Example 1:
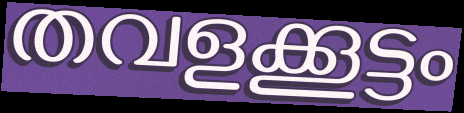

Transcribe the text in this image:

തവളക്കൂട്ടം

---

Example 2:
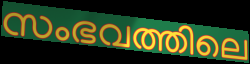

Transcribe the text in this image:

സംഭവത്തിലെ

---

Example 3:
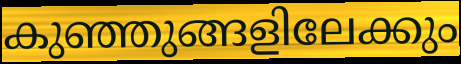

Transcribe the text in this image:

കുഞ്ഞുങ്ങളിലേക്കും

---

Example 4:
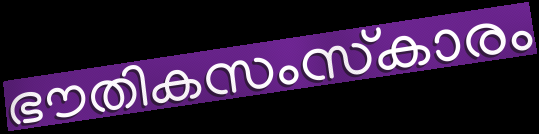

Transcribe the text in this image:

ഭൗതികസംസ്‌കാരം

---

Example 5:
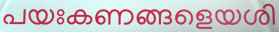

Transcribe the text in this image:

പയഃകണങ്ങളെയശി